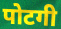
पोटगी